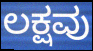
ಲಕ್ಷವು